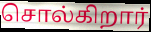
சொல்கிறார்